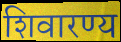
शिवारण्य